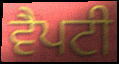
ਵੈਪਟੀ